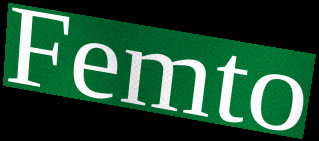
Femto